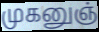
முகனுஞ்